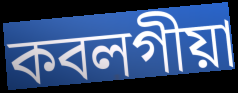
কবলগীয়া